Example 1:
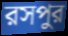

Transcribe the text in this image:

রসপুর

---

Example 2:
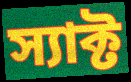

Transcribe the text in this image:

স্যাক্ট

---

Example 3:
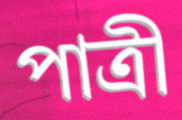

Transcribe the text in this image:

পাত্রী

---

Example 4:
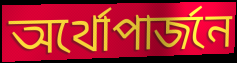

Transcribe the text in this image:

অর্থোপার্জনে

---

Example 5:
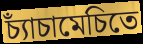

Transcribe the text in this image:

চ্যাঁচামেচিতে